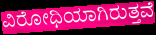
ವಿರೋಧಿಯಾಗಿರುತ್ತವೆ